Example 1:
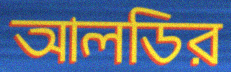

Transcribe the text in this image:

আলডির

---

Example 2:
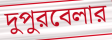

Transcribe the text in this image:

দুপুরবেলার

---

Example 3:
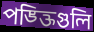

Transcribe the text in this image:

পঙ্ক্তিগুলি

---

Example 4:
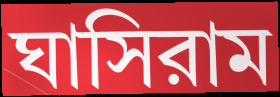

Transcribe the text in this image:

ঘাসিরাম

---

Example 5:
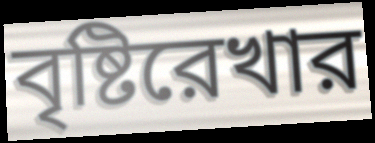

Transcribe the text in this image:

বৃষ্টিরেখার